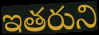
ఇతరుని